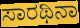
ಸಾರಥಿನಾ